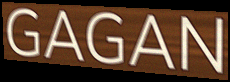
GAGAN